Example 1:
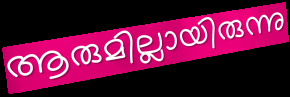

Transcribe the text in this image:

ആരുമില്ലായിരുന്നു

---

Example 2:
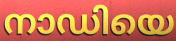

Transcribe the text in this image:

നാഡിയെ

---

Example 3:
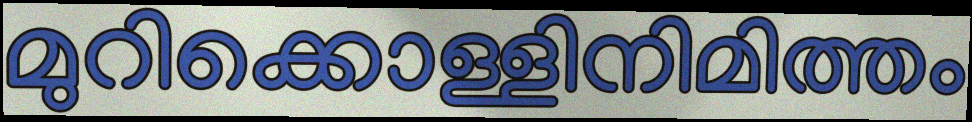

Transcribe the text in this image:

മുറിക്കൊള്ളിനിമിത്തം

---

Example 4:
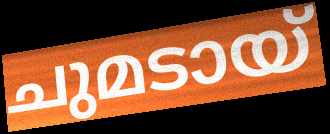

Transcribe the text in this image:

ചുമടായ്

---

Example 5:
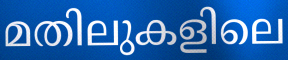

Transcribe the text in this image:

മതിലുകളിലെ